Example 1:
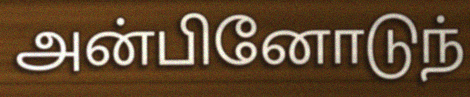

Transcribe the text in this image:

அன்பினோடுந்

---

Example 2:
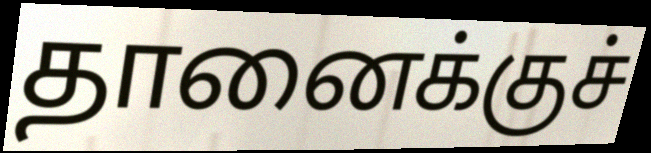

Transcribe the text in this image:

தானைக்குச்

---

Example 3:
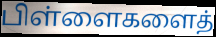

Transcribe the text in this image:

பிள்ளைகளைத்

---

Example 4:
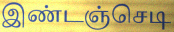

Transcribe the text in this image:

இண்டஞ்செடி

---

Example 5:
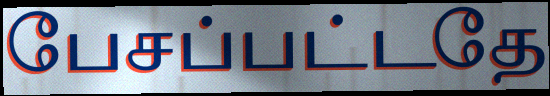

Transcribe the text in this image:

பேசப்பட்டதே